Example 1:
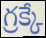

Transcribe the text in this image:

గ్రక్కే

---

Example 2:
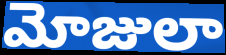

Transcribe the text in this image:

మోజులా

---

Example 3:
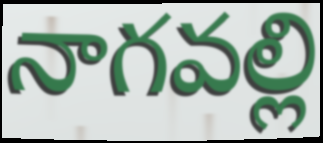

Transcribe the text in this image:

నాగవల్లి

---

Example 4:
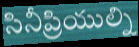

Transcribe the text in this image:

సినీప్రియుల్ని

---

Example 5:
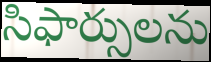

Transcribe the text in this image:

సిఫార్సులను